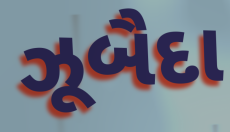
ઝૂબૈદા